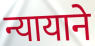
न्यायाने